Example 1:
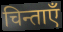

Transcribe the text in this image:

चिन्ताएँ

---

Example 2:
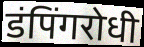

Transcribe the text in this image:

डंपिंगरोधी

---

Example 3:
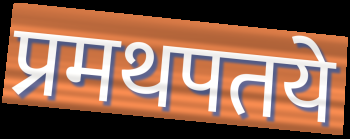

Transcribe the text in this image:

प्रमथपतये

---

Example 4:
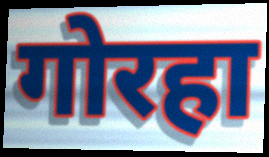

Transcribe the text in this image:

गोरहा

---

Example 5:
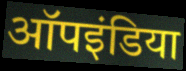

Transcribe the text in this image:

ऑपइंडिया